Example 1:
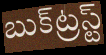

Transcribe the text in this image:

బుక్‌ట్రస్ట్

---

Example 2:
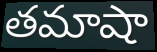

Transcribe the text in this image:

తమాషా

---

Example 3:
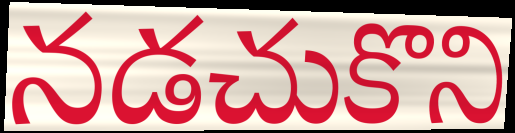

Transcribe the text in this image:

నడచుకొని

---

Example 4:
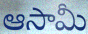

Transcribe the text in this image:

ఆసామీ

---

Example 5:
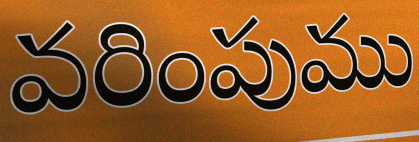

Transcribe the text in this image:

వరింపుము